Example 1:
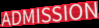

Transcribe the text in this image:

ADMISSION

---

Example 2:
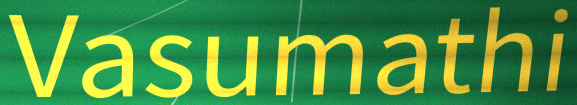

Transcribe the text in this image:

Vasumathi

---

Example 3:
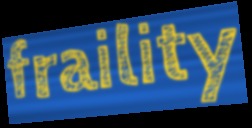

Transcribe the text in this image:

fraility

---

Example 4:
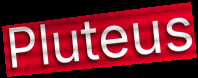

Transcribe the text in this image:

Pluteus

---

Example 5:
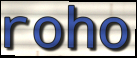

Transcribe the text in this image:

roho